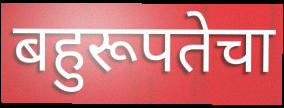
बहुरूपतेचा